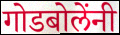
गोडबोलेंनी